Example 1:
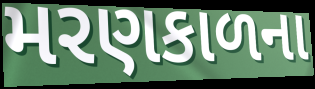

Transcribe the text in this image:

મરણકાળના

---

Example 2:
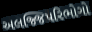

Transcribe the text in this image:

અલજ્જિપરિભોગો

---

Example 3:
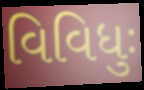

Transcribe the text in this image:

વિવિધુઃ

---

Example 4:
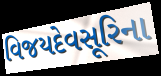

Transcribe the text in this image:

વિજયદેવસૂરિના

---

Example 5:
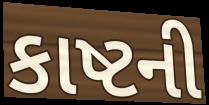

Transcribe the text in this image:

કાષ્ટની